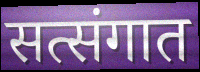
सत्संगात